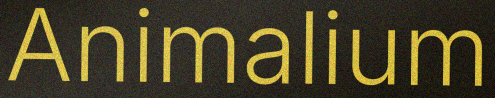
Animalium